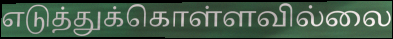
எடுத்துக்கொள்ளவில்லை